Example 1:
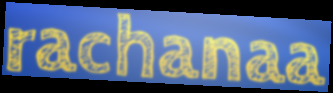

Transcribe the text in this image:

rachanaa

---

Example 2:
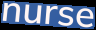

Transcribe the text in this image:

nurse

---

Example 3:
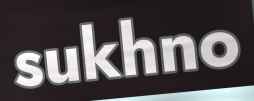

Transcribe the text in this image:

sukhno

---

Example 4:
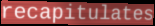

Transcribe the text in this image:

recapitulates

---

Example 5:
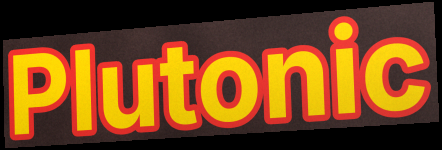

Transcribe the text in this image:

Plutonic